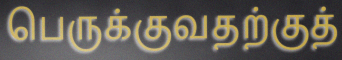
பெருக்குவதற்குத்